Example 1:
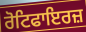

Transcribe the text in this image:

ਰੋਟਿਫਾਇਰਜ਼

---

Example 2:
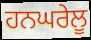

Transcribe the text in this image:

ਹਨਘਰੇਲੂ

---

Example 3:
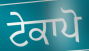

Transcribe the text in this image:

ਟੇਕਾਪੋ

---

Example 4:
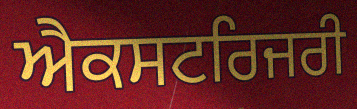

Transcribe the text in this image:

ਐਕਸਟਰਿਜਰੀ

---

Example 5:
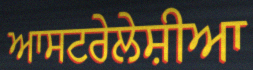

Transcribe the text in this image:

ਆਸਟਰੇਲੇਸ਼ੀਆ